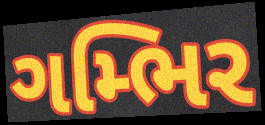
ગમ્ભિર